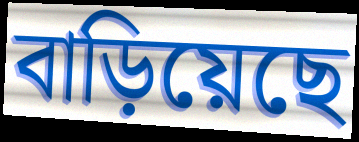
বাড়িয়েছে